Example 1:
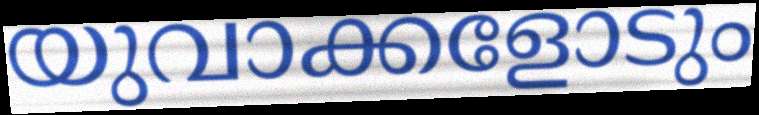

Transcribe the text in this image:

യുവാക്കളോടും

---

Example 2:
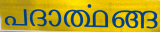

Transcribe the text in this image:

പദാൎത്ഥങ്ങ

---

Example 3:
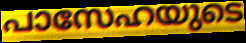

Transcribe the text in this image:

പാസേഹയുടെ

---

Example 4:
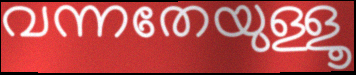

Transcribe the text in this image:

വന്നതേയുള്ളൂ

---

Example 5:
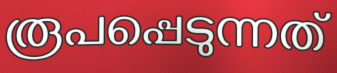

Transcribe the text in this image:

രൂപപ്പെടുന്നത്